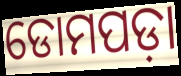
ଡୋମପଡ଼ା